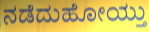
ನಡೆದುಹೋಯ್ತು